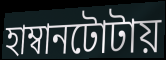
হাম্বানটোটায়